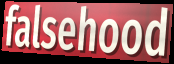
falsehood